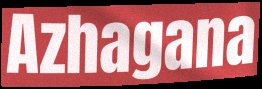
Azhagana